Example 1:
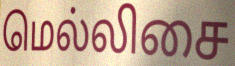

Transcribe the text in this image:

மெல்லிசை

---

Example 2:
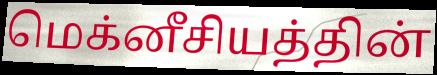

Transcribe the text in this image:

மெக்னீசியத்தின்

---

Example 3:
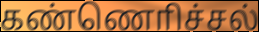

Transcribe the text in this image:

கண்ணெரிச்சல்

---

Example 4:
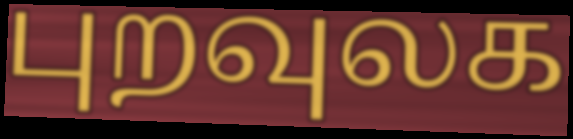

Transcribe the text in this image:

புறவுலக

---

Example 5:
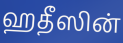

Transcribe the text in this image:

ஹதீஸின்